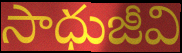
సాధుజీవి